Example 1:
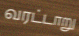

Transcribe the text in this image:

வரட்டாறு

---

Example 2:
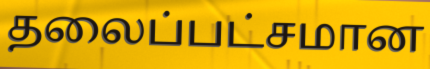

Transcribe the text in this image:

தலைப்பட்சமான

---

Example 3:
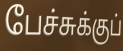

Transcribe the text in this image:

பேச்சுக்குப்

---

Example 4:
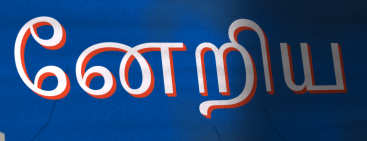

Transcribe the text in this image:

னேறிய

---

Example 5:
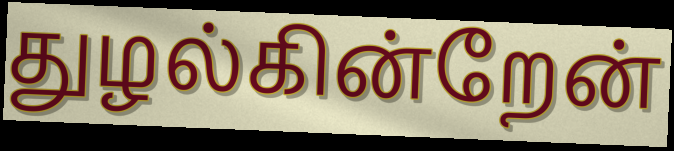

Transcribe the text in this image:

துழல்கின்றேன்